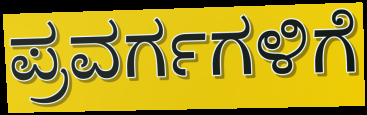
ಪ್ರವರ್ಗಗಳಿಗೆ